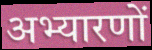
अभ्यारणों